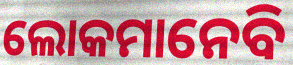
ଲୋକମାନେବି